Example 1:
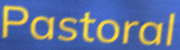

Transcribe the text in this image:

Pastoral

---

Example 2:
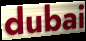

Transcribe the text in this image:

dubai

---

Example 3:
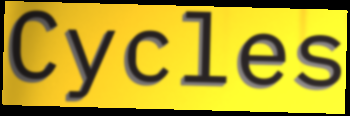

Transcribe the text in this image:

Cycles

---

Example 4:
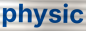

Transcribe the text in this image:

physic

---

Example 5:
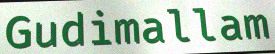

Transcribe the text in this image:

Gudimallam